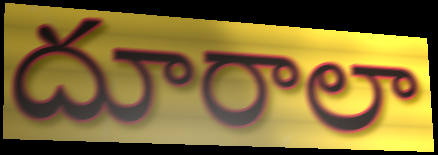
దూరాలా